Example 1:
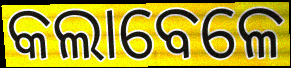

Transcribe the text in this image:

କଲାବେଳେ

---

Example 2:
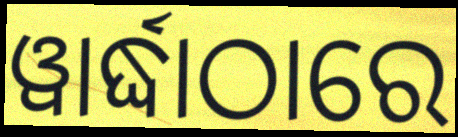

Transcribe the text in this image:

ୱାର୍ଦ୍ଧାଠାରେ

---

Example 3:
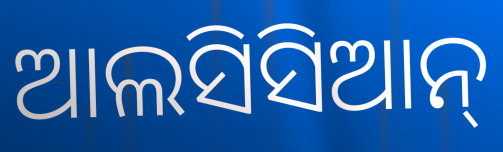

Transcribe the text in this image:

ଆଲସିସିଆନ୍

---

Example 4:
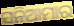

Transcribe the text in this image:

ସନିଆମାର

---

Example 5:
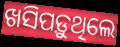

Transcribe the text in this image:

ଖସିପଡ଼ୁଥିଲେ